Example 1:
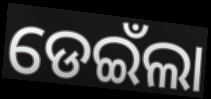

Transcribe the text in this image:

ଡେଇଁଲା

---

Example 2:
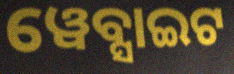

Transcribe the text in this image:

ୱେବ୍ସାଇଟ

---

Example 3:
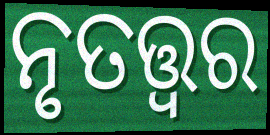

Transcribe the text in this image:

ନୃତତ୍ତ୍ଵର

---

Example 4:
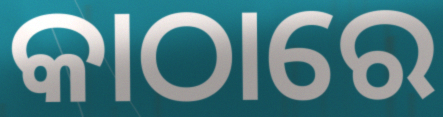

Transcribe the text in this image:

କାଠାରେ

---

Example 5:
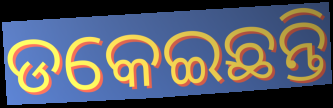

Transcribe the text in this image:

ଡକେଇଛନ୍ତି